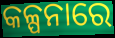
କଳ୍ପନାରେ